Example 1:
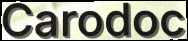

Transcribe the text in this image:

Carodoc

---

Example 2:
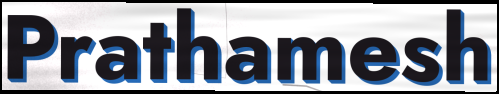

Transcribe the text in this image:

Prathamesh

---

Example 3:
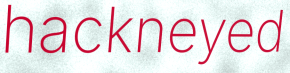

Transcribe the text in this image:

hackneyed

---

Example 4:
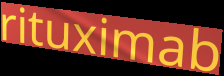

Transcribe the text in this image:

rituximab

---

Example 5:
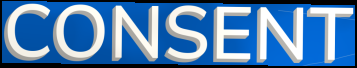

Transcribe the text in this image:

CONSENT